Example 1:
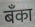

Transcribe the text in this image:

बँका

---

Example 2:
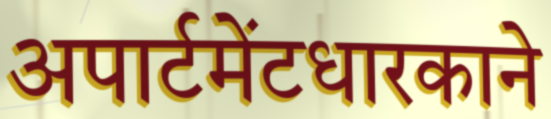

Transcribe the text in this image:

अपार्टमेंटधारकाने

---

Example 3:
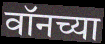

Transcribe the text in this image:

वॉनच्या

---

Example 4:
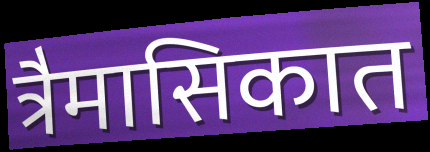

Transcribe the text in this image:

त्रैमासिकात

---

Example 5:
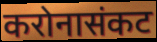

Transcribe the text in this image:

करोनासंकट